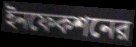
ইনফেকশনের